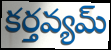
కర్తవ్యమ్